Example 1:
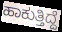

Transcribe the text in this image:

ಹಾಕುತ್ತಿದ್ದೆ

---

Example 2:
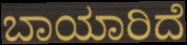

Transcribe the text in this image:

ಬಾಯಾರಿದೆ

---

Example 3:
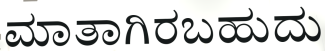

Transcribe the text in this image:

ಮಾತಾಗಿರಬಹುದು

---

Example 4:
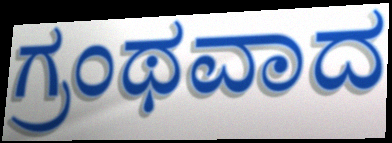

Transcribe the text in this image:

ಗ್ರಂಥವಾದ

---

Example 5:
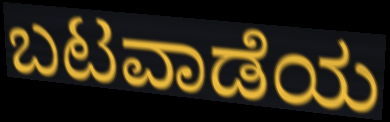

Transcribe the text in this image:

ಬಟವಾಡೆಯ